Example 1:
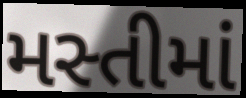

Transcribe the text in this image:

મસ્તીમાં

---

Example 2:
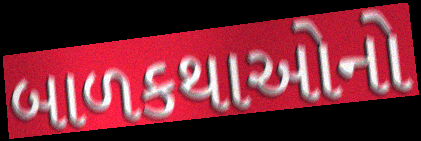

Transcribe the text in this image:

બાળકથાઓનો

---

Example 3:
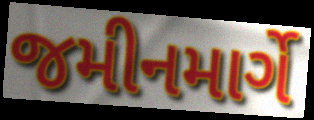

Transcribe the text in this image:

જમીનમાર્ગે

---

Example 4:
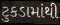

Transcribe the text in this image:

ટુકડામાંથી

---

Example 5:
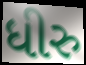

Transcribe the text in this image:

ધીરુ